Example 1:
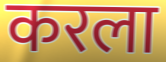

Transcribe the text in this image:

करला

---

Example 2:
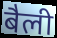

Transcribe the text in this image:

बैली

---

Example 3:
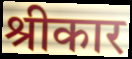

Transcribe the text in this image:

श्रीकार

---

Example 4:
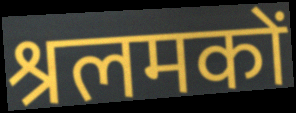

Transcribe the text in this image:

श्रलमकों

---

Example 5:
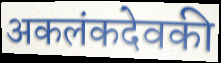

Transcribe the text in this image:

अकलंकदेवकी